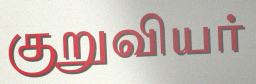
குறுவியர்